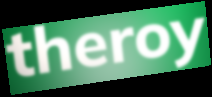
theroy